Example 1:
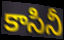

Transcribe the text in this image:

కాసినీ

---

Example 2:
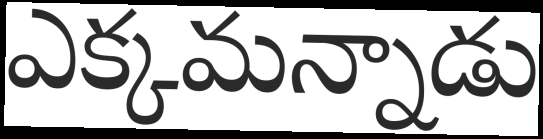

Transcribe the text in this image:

ఎక్కమన్నాడు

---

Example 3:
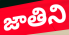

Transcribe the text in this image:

జాతిని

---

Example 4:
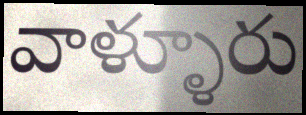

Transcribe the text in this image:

వాళ్ళూరు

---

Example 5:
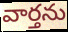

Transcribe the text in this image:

వార్తను